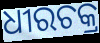
ଧୀରଚକ୍ର